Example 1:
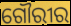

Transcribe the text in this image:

ଗୌରୀର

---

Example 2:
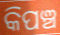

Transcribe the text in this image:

କିପଞ୍ଚ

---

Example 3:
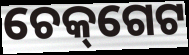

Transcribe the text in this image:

ଚେକ୍‌ଗେଟ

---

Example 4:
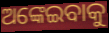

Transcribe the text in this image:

ଅଙ୍କେଇବାକୁ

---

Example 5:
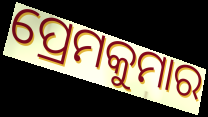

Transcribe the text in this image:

ପ୍ରେମକୁମାର